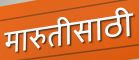
मारुतीसाठी